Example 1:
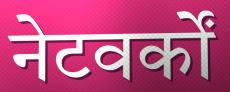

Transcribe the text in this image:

नेटवर्कों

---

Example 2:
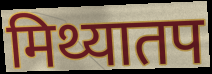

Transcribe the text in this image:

मिथ्यातप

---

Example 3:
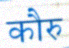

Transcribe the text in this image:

कौरु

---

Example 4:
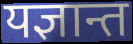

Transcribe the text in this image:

यज्ञान्त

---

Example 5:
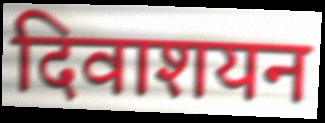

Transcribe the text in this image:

दिवाशयन